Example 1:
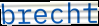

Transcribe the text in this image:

brecht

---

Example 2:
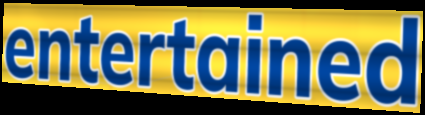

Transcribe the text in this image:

entertained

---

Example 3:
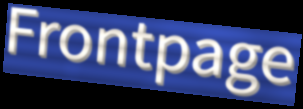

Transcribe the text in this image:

Frontpage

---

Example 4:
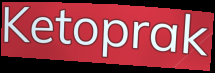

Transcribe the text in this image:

Ketoprak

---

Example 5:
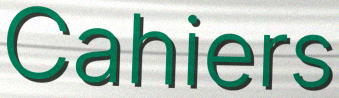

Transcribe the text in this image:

Cahiers